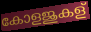
കോളജുകള്